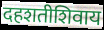
दहशतीशिवाय